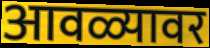
आवळ्यावर